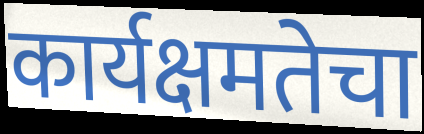
कार्यक्षमतेचा